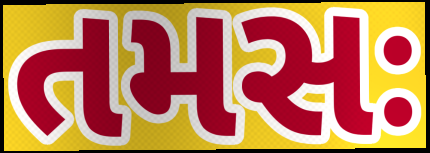
તમસઃ